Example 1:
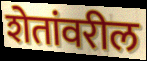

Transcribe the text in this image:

शेतांवरील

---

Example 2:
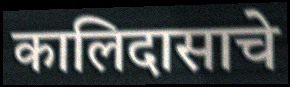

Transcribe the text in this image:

कालिदासाचे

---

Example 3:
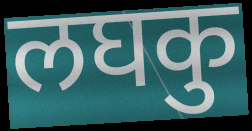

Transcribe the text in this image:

लघकु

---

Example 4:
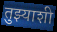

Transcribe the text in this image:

तुझ्याशी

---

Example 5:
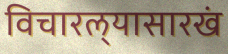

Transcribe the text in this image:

विचारल्यासारखं